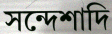
সন্দেশাদি